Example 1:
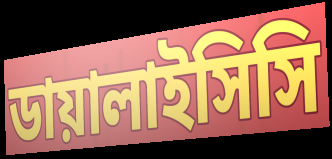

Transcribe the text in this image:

ডায়ালাইসিসি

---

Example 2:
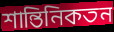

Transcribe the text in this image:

শান্তিনিকতন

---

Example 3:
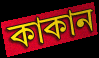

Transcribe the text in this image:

কাকান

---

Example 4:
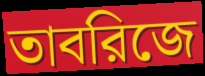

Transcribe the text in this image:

তাবরিজে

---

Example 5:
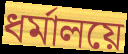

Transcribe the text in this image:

ধর্মালয়ে